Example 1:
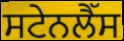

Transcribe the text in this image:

ਸਟੇਨਲੈੱਸ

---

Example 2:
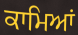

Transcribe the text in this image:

ਕਾਮਿਆਂ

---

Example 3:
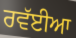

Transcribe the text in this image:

ਰਵੱਈਆ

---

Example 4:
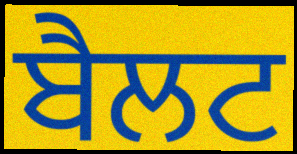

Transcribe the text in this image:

ਬੈਲਟ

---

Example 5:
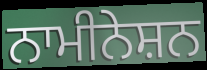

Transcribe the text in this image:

ਨਾਮੀਨੇਸ਼ਨ